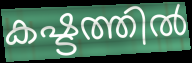
കഷ്ടത്തിൽ